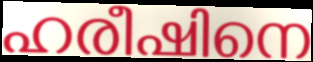
ഹരീഷിനെ